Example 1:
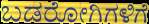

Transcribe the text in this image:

ಬಡರೋಗಿಗಳಿಗೆ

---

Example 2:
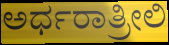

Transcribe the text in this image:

ಅರ್ಧರಾತ್ರೀಲಿ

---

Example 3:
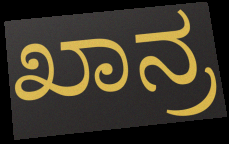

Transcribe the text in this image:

ಖಾನ್ರ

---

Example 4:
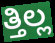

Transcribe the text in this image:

ತ್ತಿಲ್ಲ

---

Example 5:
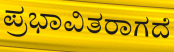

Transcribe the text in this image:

ಪ್ರಭಾವಿತರಾಗದೆ